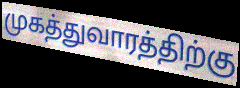
முகத்துவாரத்திற்கு